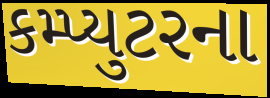
કમ્પ્યુટરના